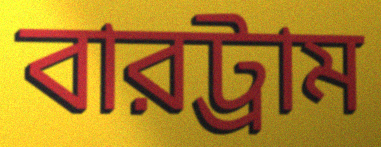
বারট্রাম